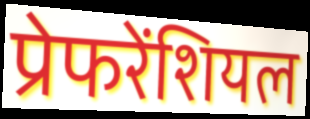
प्रेफरेंशियल